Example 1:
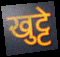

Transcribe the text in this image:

खुट्टे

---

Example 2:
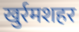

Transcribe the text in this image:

खुर्रमशहर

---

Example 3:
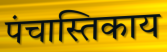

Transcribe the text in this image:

पंचास्तिकाय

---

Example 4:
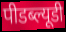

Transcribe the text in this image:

पीडब्ल्यूडी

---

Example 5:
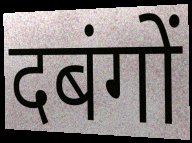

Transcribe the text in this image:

दबंगों